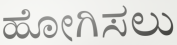
ಹೋಗಿಸಲು